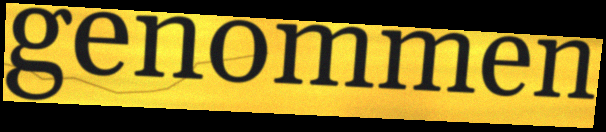
genommen